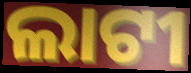
ଲାଟୀ